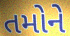
તમોને